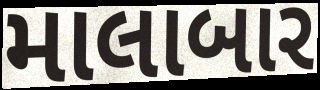
માલાબાર